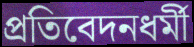
প্রতিবেদনধর্মী